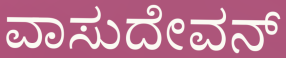
ವಾಸುದೇವನ್